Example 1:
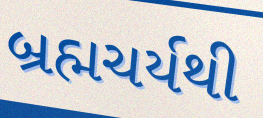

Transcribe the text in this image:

બ્રહ્મચર્યથી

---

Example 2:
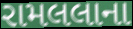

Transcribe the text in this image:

રામલલાના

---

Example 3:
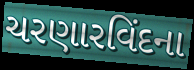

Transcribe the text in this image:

ચરણારવિંદના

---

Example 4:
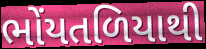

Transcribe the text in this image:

ભોંયતળિયાથી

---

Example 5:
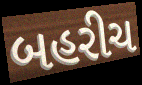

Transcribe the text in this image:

બહરીચ